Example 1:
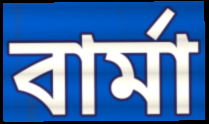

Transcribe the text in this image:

বার্মা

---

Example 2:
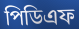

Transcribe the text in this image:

পিডিএফ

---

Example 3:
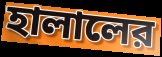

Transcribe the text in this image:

হালালের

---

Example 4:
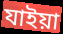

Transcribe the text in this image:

যাইয়া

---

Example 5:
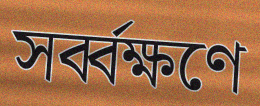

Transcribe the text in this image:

সর্ব্বক্ষণে